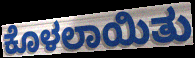
ಕೊಳಲಾಯಿತು